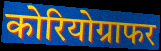
कोरियोग्राफर